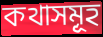
কথাসমূহ